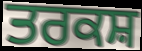
ਤਰਕਸ਼